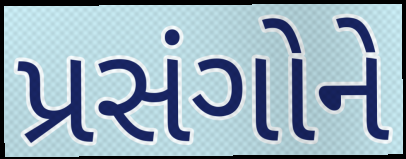
પ્રસંગોને